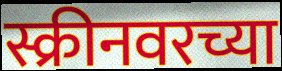
स्क्रीनवरच्या